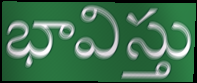
భావిస్తు